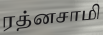
ரத்னசாமி